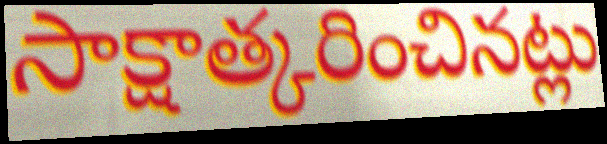
సాక్షాత్కరించినట్లు